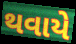
થવાયે